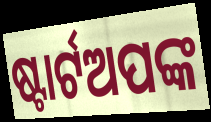
ଷ୍ଟାର୍ଟଅପଙ୍କ